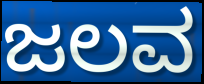
ಜಲವ